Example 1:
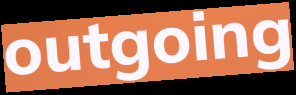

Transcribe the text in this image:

outgoing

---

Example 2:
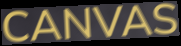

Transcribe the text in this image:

CANVAS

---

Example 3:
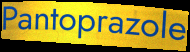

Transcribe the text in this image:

Pantoprazole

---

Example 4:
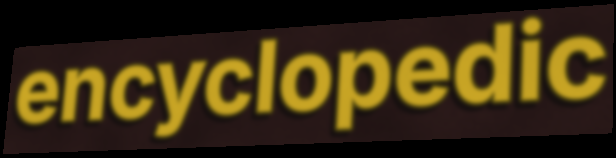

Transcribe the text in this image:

encyclopedic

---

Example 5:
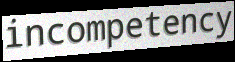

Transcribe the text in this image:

incompetency